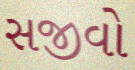
સજીવો